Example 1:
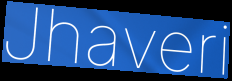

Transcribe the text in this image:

Jhaveri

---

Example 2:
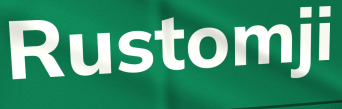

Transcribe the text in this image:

Rustomji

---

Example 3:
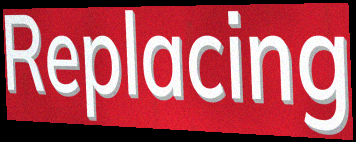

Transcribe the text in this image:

Replacing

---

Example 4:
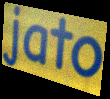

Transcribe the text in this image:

jato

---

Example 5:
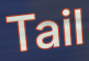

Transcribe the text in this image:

Tail